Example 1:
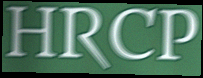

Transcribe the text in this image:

HRCP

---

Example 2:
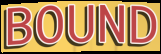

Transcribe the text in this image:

BOUND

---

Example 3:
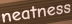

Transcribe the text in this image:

neatness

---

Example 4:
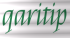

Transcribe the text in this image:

qaritip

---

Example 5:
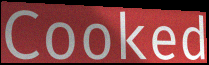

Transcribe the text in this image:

Cooked